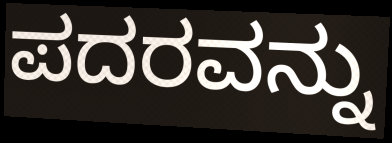
ಪದರವನ್ನು